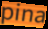
pina